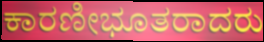
ಕಾರಣೀಭೂತರಾದರು